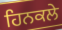
ਹਿਨਕਲੇ